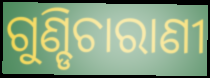
ଗୁଣ୍ଡିଚାରାଣୀ